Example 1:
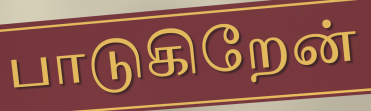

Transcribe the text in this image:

பாடுகிறேன்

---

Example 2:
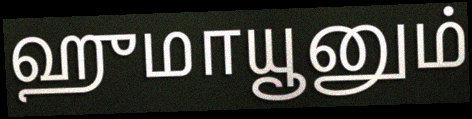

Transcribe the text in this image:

ஹுமாயூனும்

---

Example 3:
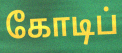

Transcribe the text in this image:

கோடிப்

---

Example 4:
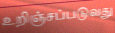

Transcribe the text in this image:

உறிஞ்சப்படுவது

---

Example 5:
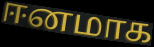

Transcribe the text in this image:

ஈனமாக